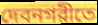
দেবনগরীতে